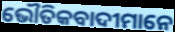
ଭୌତିକବାଦୀମାନେ